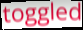
toggled